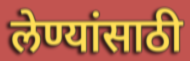
लेण्यांसाठी